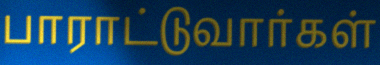
பாராட்டுவார்கள்